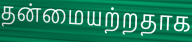
தன்மையற்றதாக